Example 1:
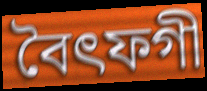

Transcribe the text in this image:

বৈৎফগী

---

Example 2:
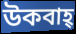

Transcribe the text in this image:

উকবাহ্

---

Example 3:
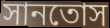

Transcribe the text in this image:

সানতোস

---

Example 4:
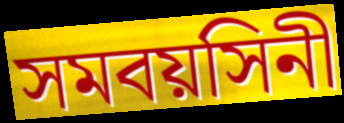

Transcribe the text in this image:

সমবয়সিনী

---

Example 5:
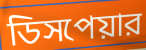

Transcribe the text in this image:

ডিসপেয়ার